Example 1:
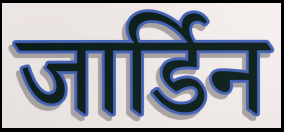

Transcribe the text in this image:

जार्डिन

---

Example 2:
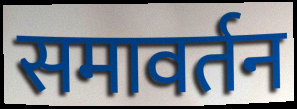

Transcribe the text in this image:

समावर्तन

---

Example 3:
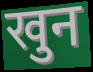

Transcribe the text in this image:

खुन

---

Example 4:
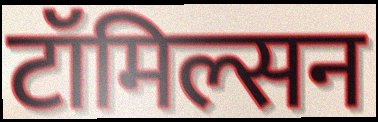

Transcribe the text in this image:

टॉमिल्सन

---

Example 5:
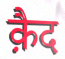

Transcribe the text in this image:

क़ैद